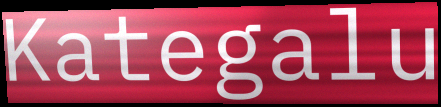
Kategalu